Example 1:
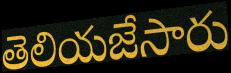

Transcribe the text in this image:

తెలియజేసారు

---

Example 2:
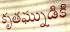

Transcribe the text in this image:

కృతఘ్నుడికి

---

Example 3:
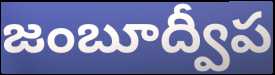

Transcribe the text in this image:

జంబూద్వీప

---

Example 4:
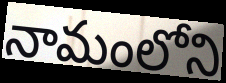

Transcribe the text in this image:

నామంలోని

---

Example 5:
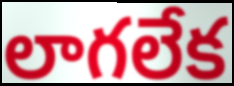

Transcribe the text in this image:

లాగలేక